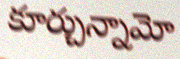
కూర్చున్నామో